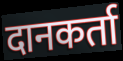
दानकर्ता